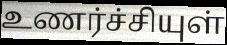
உணர்ச்சியுள்